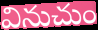
వినుచుం